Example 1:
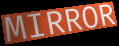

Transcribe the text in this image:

MIRROR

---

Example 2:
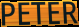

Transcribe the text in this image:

PETER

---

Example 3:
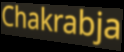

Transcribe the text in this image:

Chakrabja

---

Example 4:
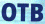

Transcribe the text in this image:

OTB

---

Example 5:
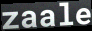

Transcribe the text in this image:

zaale